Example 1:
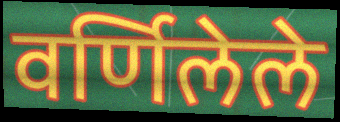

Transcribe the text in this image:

वर्णिलेले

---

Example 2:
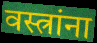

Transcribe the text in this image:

वस्त्रांना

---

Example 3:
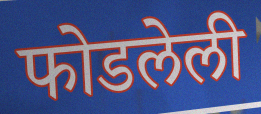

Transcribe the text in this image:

फोडलेली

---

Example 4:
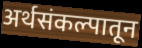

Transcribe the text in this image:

अर्थसंकल्पातून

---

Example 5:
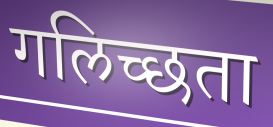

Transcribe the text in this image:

गलिच्छता